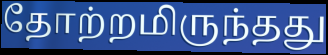
தோற்றமிருந்தது